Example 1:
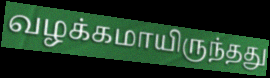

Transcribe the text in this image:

வழக்கமாயிருந்தது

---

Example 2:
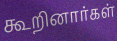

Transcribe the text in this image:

கூறினார்கள்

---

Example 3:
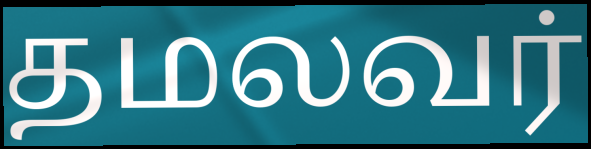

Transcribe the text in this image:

தமலவர்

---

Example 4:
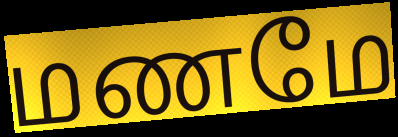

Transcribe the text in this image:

மணமே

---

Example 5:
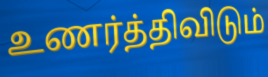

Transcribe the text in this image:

உணர்த்திவிடும்